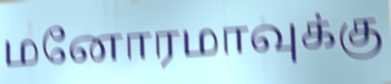
மனோரமாவுக்கு